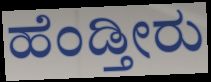
ಹೆಂಡ್ತೀರು